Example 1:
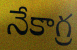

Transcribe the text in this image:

నేకాగ్ర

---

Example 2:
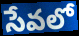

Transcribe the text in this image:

సేవలో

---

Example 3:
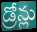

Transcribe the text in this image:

డ్రోన్లు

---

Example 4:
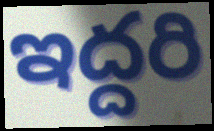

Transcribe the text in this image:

ఇద్దరి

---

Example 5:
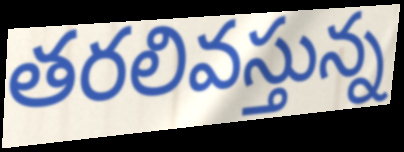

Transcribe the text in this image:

తరలివస్తున్న